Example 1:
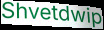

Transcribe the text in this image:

Shvetdwip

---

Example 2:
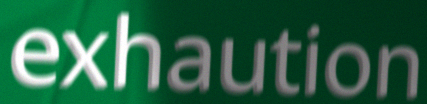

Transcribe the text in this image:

exhaution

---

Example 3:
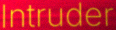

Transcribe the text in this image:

Intruder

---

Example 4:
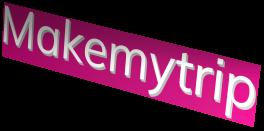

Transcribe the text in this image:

Makemytrip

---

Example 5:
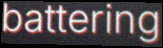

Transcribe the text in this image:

battering